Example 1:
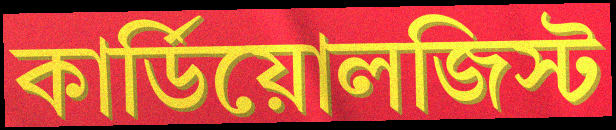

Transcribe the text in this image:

কার্ডিয়োলজিস্ট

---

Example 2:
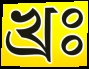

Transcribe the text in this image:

খ্রঃ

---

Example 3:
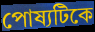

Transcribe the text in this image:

পোষ্যটিকে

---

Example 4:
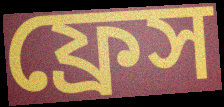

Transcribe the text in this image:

ফ্রেস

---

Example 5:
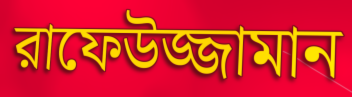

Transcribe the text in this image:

রাফেউজ্জামান